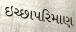
ઇચ્છાપરિમાણ